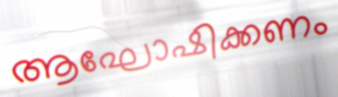
ആഘോഷിക്കണം